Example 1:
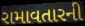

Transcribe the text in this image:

રામાવતારની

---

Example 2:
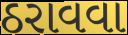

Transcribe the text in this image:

ઠરાવવા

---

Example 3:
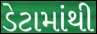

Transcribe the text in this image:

ડેટામાંથી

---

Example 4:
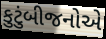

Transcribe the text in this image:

કુટુંબીજનોએ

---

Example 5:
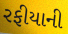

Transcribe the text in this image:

રફીયાની